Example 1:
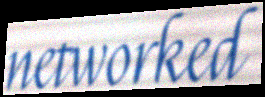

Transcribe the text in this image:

networked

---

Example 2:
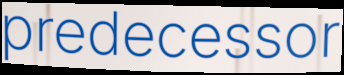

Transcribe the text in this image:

predecessor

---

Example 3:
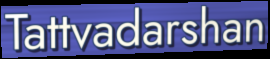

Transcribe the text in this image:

Tattvadarshan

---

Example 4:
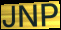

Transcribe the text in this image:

JNP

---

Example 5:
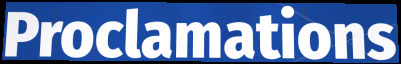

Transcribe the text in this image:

Proclamations